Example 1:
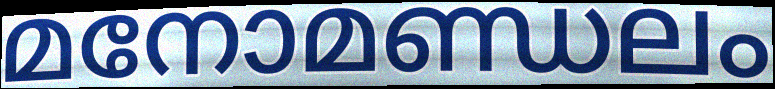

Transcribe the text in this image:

മനോമണ്ഡലം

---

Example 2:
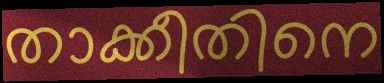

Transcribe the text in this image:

താക്കീതിനെ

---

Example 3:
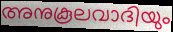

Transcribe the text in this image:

അനുകൂലവാദിയും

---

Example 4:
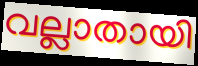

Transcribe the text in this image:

വല്ലാതായി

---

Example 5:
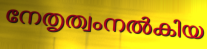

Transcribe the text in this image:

നേതൃത്വംനൽകിയ